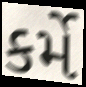
કર્મે